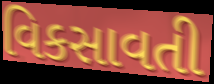
વિકસાવતી